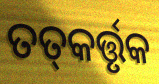
ତତ୍‌କର୍ତ୍ତୃକ